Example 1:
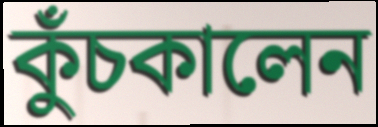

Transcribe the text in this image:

কুঁচকালেন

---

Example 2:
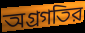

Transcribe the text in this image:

অগ্রগতির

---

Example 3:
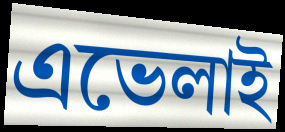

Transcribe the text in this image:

এভেলাই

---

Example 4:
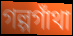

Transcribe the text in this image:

গল্পগাঁথা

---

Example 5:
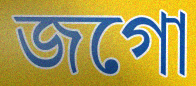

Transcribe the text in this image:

জগো